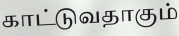
காட்டுவதாகும்